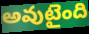
అవుటైంది